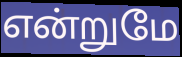
என்றுமே